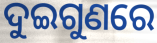
ଦୁଇଗୁଣରେ